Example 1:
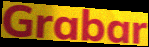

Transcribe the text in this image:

Grabar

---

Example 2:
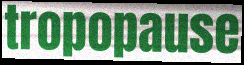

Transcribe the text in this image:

tropopause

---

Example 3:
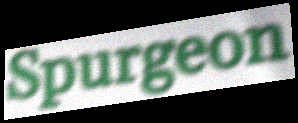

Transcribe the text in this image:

Spurgeon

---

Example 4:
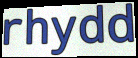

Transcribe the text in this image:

rhydd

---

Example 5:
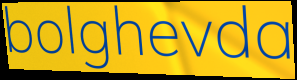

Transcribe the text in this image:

bolghevda